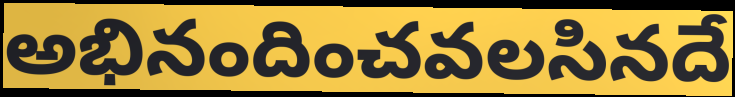
అభినందించవలసినదే